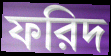
ফরিদ